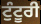
ਟੁੰਟੂਰੀ